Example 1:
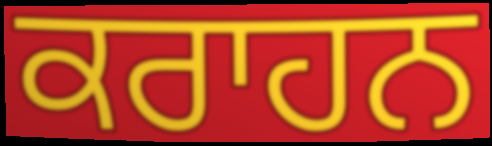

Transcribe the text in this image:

ਕਰਾਹਨ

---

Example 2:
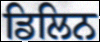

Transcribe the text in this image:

ਡਿਲਿਨ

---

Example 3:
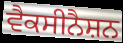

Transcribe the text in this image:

ਵੈਕਸੀਨੈਸ਼ਨ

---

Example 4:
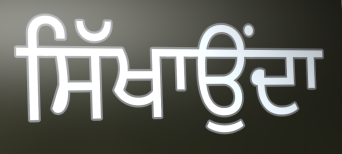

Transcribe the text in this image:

ਸਿੱਖਾਉਂਦਾ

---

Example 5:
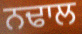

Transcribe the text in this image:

ਨਢਾਲ